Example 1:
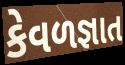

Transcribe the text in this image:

કેવળજ્ઞાત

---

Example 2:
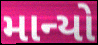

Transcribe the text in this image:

માન્યો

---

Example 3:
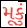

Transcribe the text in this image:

મૂકું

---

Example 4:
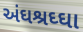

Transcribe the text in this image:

અંઘશ્રઘ્ઘા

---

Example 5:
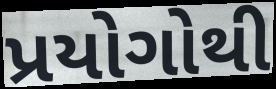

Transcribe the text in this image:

પ્રયોગોથી